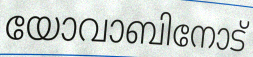
യോവാബിനോട്